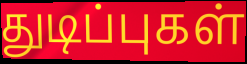
துடிப்புகள்